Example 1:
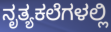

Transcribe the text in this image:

ನೃತ್ಯಕಲೆಗಳಲ್ಲಿ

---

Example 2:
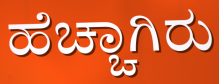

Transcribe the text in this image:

ಹೆಚ್ಚಾಗಿರು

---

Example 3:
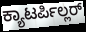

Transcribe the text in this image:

ಕ್ಯಾಟರ್ಪಿಲ್ಲರ್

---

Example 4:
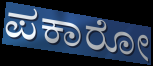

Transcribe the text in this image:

ಪಕಾರೋ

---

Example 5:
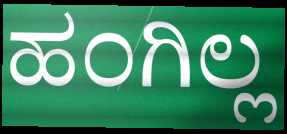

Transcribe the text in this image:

ಹಂಗಿಲ್ಲ